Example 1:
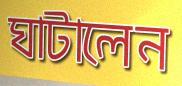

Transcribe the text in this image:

ঘাটালেন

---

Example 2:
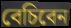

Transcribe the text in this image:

বেচিবেন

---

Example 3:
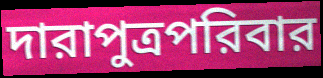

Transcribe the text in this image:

দারাপুত্রপরিবার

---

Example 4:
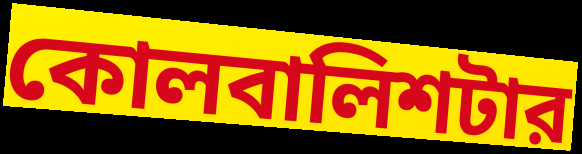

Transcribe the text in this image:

কোলবালিশটার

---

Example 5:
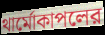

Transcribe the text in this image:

থার্মোকাপলের